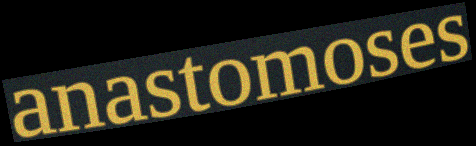
anastomoses